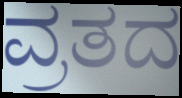
ವ್ರತದ